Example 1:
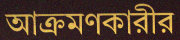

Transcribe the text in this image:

আক্রমণকারীর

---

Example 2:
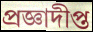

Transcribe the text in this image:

প্রজ্ঞাদীপ্ত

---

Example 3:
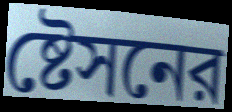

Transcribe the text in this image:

ষ্টেসনের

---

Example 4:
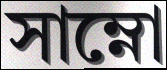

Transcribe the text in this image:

সাম্নো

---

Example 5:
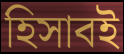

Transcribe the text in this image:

হিসাবই